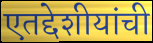
एतद्देशीयांची